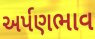
અર્પણભાવ